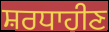
ਸ਼ਰਧਾਹੀਣ